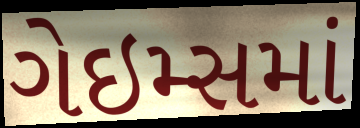
ગેઇમ્સમાં